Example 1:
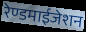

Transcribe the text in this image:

रेण्डमाईजेशन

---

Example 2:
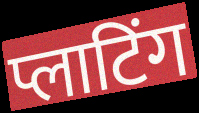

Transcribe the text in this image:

प्लाटिंग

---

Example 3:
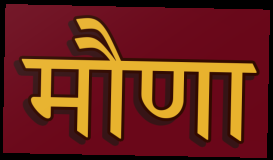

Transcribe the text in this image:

मौणा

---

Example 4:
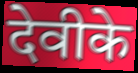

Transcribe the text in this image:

देवीके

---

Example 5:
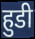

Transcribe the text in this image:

हुडी